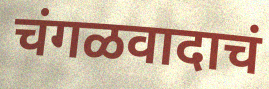
चंगळवादाचं